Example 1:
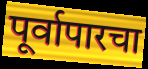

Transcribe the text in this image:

पूर्वापारचा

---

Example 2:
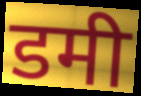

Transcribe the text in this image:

डमी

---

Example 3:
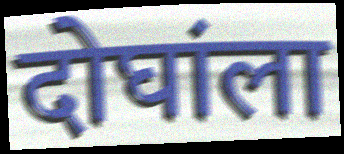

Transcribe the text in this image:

दोघांला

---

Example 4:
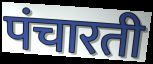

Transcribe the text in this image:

पंचारती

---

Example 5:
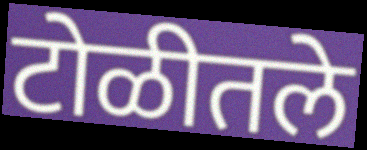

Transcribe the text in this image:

टोळीतले